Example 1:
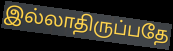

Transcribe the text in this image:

இல்லாதிருப்பதே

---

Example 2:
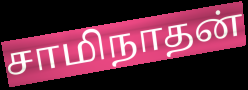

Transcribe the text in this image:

சாமிநாதன்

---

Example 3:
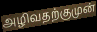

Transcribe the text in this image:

அழிவதற்குமுன்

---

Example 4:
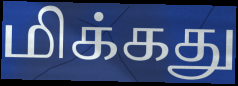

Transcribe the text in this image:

மிக்கது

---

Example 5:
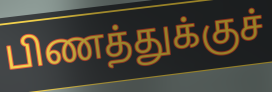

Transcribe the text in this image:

பிணத்துக்குச்